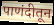
पाणंदीतून